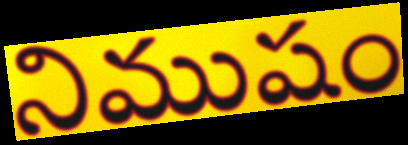
నిముషం